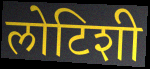
लोटिशी